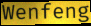
Wenfeng